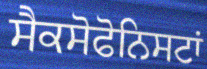
ਸੈਕਸੋਫੋਨਿਸਟਾਂ